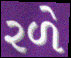
રળે